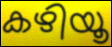
കഴിയൂ